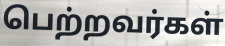
பெற்றவர்கள்